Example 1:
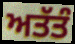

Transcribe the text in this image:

ਅਤੱਤੰ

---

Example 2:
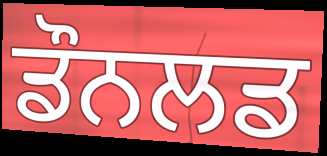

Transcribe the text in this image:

ਡੌਨਲਡ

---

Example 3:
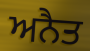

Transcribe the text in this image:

ਅਨੈਤ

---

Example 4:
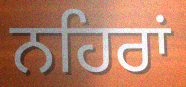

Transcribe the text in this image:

ਨਹਿਰਾਂ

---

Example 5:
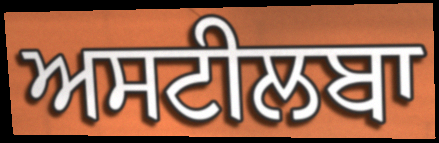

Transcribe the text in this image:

ਅਸਟੀਲਬਾ